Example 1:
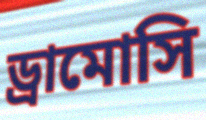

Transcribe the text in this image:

ড্রামোসি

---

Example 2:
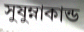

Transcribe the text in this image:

সুষুম্নাকান্ড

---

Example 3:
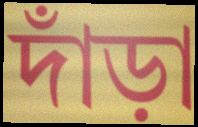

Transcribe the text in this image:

দাঁড়া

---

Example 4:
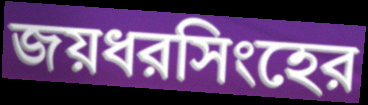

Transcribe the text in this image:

জয়ধরসিংহের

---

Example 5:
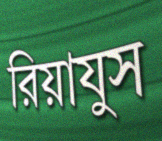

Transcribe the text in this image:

রিয়াযুস